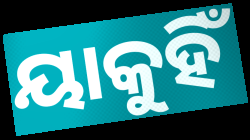
ୟାକୁହିଁ